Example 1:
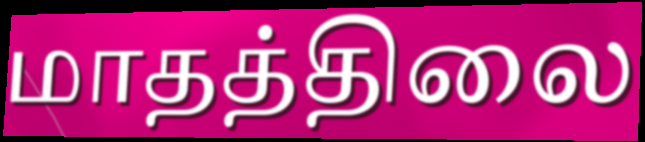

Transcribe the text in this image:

மாதத்திலை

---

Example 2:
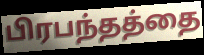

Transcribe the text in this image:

பிரபந்தத்தை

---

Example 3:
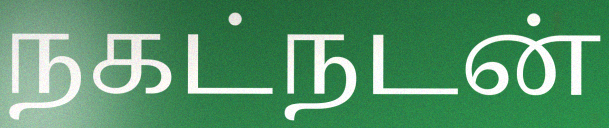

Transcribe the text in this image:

நகட்நடன்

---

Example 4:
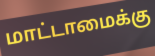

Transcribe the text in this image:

மாட்டாமைக்கு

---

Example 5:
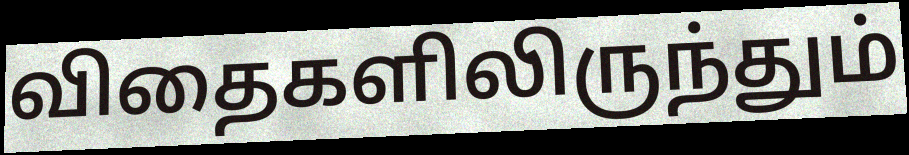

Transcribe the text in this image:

விதைகளிலிருந்தும்